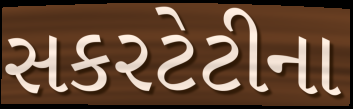
સકરટેટીના